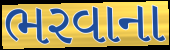
ભરવાના